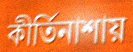
কীর্তিনাশায়